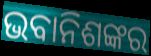
ଭବାନିଶଙ୍କର